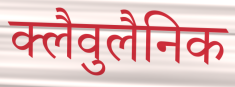
क्लैवुलैनिक